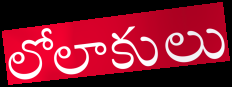
లోలాకులు